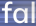
fal